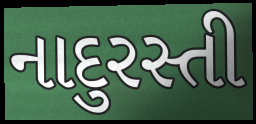
નાદુરસ્તી